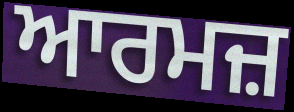
ਆਰਮਜ਼